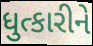
ધુત્કારીને